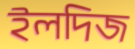
ইলদিজ